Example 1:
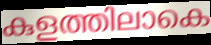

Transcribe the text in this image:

കുളത്തിലാകെ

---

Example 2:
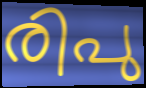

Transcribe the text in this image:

രിപു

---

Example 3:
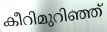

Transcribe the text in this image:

കീറിമുറിഞ്ഞ്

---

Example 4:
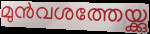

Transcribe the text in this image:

മുൻവശത്തേയ്ക്കു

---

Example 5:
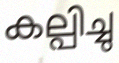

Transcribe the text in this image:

കല്പിച്ചു